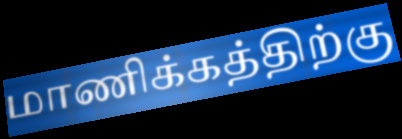
மாணிக்கத்திற்கு